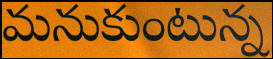
మనుకుంటున్న